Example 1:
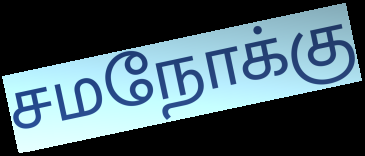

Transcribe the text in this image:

சமநோக்கு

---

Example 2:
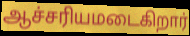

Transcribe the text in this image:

ஆச்சரியமடைகிறார்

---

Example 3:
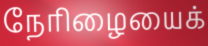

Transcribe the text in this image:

நேரிழையைக்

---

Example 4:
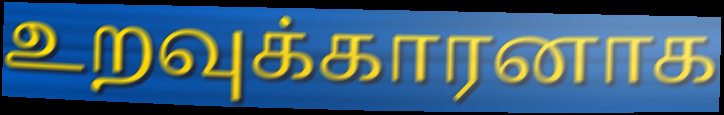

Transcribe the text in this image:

உறவுக்காரனாக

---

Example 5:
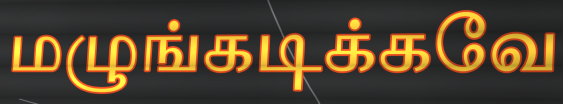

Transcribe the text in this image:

மழுங்கடிக்கவே